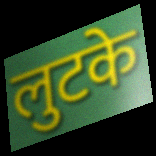
लुटके